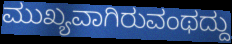
ಮುಖ್ಯವಾಗಿರುವಂಥದ್ದು